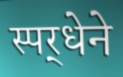
स्पर्धेने